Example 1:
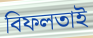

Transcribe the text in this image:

বিফলতাই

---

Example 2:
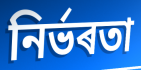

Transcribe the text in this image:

নিৰ্ভৰতা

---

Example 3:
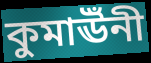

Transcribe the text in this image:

কুমাঊঁনী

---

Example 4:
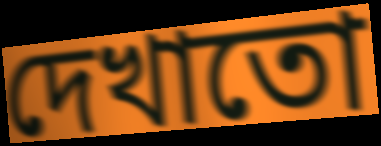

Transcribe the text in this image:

দেখাতো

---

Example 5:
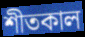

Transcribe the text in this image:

শীতকাল